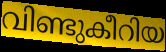
വിണ്ടുകീറിയ